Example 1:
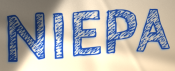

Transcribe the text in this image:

NIEPA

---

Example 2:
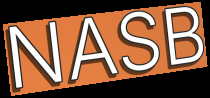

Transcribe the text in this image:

NASB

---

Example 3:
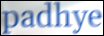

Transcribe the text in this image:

padhye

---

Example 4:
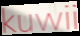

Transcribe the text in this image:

kuwii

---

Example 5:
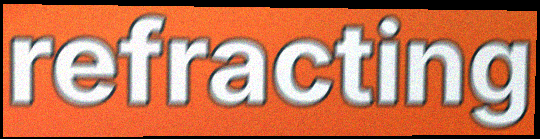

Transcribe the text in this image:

refracting